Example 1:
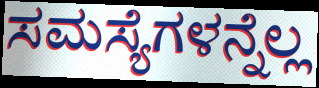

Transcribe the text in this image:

ಸಮಸ್ಯೆಗಳನ್ನೆಲ್ಲ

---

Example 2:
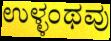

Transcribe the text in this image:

ಉಳ್ಳಂಥವು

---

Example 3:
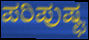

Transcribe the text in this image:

ಪರಿಪುಷ್ಟ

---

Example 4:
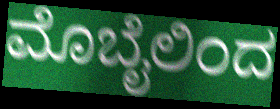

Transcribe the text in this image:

ಮೊಬೈಲಿಂದ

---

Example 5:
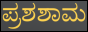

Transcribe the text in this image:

ಪ್ರಶಶಾಮ